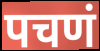
पचणं